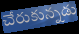
చేరుకున్నడు